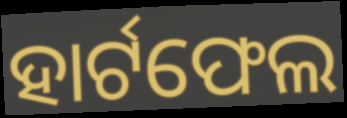
ହାର୍ଟଫେଲ